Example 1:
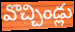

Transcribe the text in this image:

వొచ్చిండ్లు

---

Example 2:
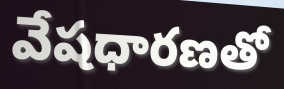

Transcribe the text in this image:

వేషధారణతో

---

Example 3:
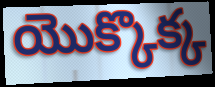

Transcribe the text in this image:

యొక్కొక్క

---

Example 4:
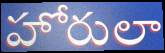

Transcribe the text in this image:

హోరులా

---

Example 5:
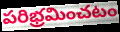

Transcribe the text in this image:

పరిభ్రమించటం